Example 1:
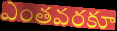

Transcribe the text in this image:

ఎంతవరకూ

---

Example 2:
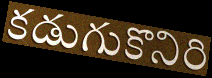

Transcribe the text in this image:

కడుగుకొనిరి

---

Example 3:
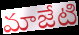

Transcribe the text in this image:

మాజేటి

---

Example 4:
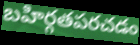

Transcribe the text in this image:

బహిర్గతపరచడం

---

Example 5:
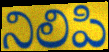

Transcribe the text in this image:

నిలిపి